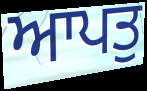
ਆਪਤੁ